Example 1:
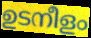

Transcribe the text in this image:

ഉടനീളം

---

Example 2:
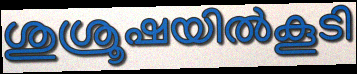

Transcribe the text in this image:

ശുശ്രൂഷയിൽകൂടി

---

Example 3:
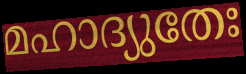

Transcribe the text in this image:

മഹാദ്യുതേഃ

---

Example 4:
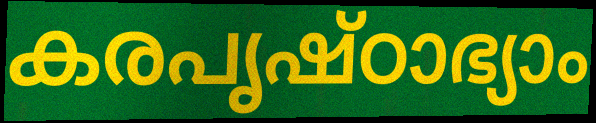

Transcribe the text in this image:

കരപൃഷ്ഠാഭ്യാം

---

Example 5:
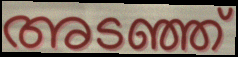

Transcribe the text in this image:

അടഞ്ഞ്